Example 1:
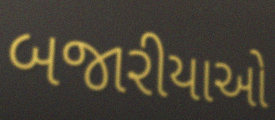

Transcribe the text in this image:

બજારીયાઓ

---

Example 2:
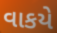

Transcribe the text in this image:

વાકયે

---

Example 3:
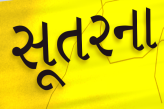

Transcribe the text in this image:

સૂતરના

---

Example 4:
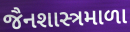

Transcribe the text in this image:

જૈનશાસ્ત્રમાળા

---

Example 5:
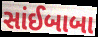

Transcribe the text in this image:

સાંઈબાબા